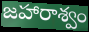
జహారాశ్వం